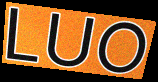
LUO